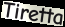
Tiretta